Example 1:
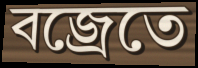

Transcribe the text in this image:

বজ্রেতে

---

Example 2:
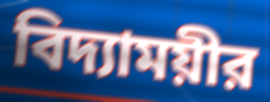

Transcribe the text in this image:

বিদ্যাময়ীর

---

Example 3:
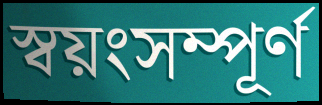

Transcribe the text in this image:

স্বয়ংসম্পূর্ণ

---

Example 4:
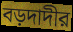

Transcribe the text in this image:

বড়দাদীর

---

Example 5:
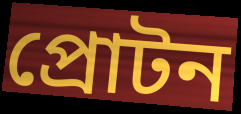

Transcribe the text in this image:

প্রোটন